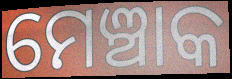
ମେଞ୍ଚାକ